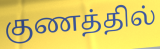
குணத்தில்